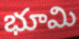
భూమి